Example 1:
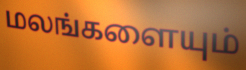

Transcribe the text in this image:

மலங்களையும்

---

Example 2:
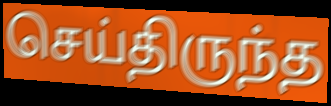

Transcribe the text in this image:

செய்திருந்த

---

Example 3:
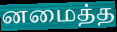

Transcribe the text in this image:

னமைத்த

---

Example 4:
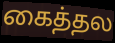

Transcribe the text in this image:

கைத்தல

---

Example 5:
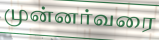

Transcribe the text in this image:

முன்னர்வரை